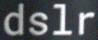
dslr